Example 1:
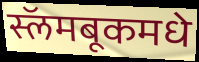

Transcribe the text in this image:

स्लॅमबूकमधे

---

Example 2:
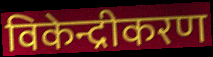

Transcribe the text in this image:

विकेन्द्रीकरण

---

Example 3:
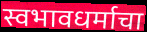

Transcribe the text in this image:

स्वभावधर्माचा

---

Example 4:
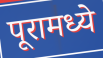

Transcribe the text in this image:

पूरामध्ये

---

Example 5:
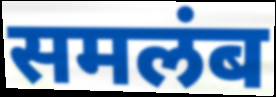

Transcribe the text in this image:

समलंब